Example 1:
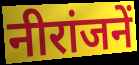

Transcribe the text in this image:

नीरांजनें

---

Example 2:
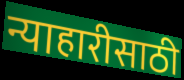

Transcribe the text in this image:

न्याहारीसाठी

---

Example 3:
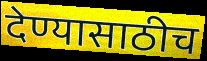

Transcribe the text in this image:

देण्यासाठीच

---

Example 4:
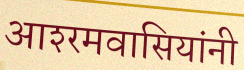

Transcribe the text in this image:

आश्रमवासियांनी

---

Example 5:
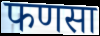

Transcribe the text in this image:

फणसा